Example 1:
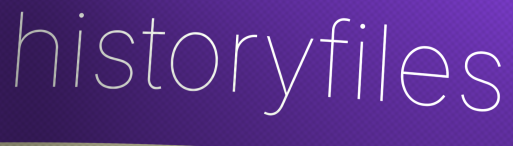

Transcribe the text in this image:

historyfiles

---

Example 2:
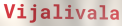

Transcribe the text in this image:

Vijalivala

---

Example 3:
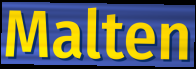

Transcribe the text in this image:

Malten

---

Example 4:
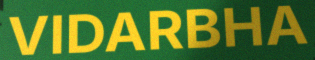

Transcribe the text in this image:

VIDARBHA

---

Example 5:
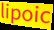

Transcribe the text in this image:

lipoic